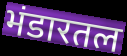
भंडारतल